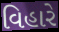
વિહારે